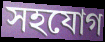
সহযোগ